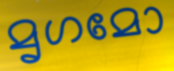
മൃഗമോ